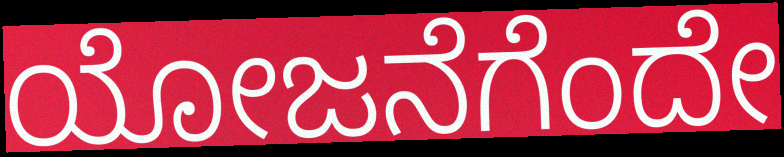
ಯೋಜನೆಗೆಂದೇ